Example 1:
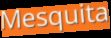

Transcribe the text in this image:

Mesquita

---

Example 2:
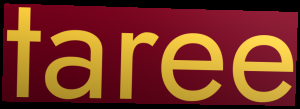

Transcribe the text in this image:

taree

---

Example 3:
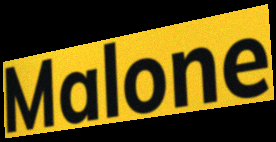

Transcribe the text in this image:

Malone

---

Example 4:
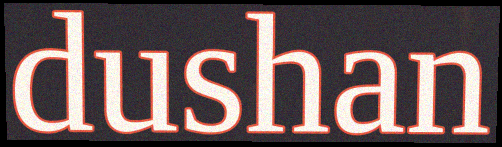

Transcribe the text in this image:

dushan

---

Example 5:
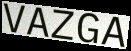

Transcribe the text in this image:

VAZGA